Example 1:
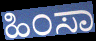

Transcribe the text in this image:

ಹಿಂಸಾ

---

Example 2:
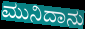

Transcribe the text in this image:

ಮುನಿದಾನು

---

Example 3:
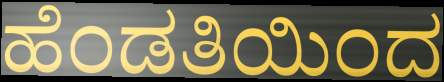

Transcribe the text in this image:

ಹೆಂಡತಿಯಿಂದ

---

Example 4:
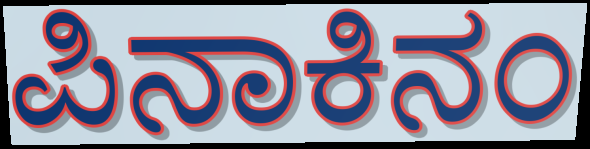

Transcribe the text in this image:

ಪಿನಾಕಿನಂ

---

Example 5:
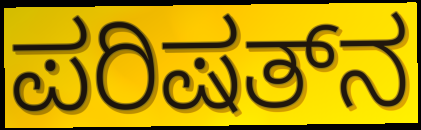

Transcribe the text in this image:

ಪರಿಷತ್‌ನ